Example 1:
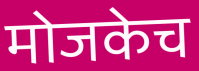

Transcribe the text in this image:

मोजकेच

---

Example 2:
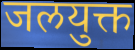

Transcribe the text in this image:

जलयुक्त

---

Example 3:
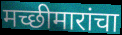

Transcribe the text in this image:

मच्छीमारांचा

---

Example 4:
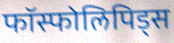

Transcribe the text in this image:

फॉस्फोलिपिड्स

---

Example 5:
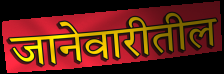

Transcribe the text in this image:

जानेवारीतील